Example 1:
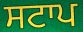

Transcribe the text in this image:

ਸਟਾਪ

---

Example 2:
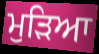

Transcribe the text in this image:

ਮੁੜਿਆ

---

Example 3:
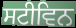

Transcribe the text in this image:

ਸਟੀਵਿਨ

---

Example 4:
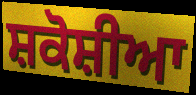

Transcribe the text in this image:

ਸ਼ਕੋਸ਼ੀਆ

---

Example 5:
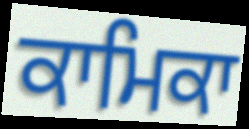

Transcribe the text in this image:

ਕਾਮਿਕਾ